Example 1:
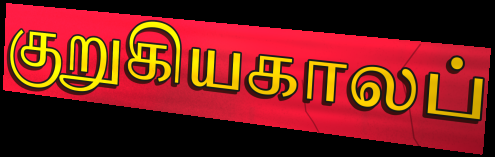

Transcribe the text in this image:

குறுகியகாலப்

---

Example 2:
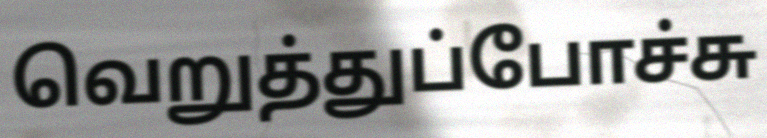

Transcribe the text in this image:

வெறுத்துப்போச்சு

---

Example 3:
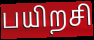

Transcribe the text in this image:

பயிறசி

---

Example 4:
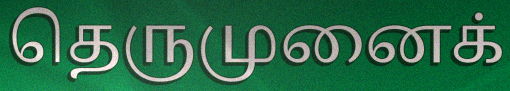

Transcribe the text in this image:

தெருமுனைக்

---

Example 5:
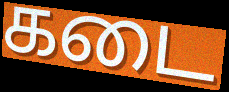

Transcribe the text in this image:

கடை